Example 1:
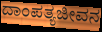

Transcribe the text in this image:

ದಾಂಪತ್ಯಜೀವನ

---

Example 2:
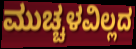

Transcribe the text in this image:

ಮುಚ್ಚಳವಿಲ್ಲದ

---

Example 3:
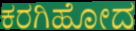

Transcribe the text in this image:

ಕರಗಿಹೋದ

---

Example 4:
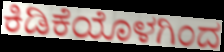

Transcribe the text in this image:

ಕಿಡಿಕೆಯೊಳಗಿಂದ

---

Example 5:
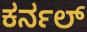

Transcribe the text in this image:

ಕರ್ನಲ್